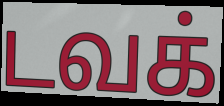
டவக்